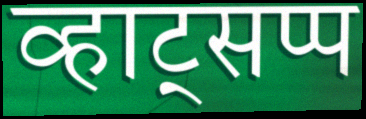
व्हाट्सप्प